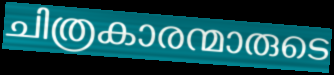
ചിത്രകാരന്മാരുടെ